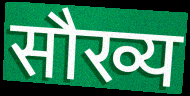
सौख्य